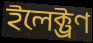
ইলেক্ট্ৰণ